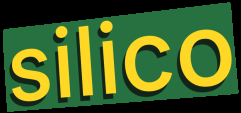
silico